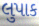
લુપાક